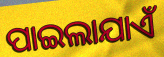
ପାଇଲାଯାଏଁ